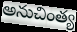
అనుచింత్య